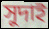
সুদাই